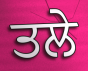
ਤਲੇ